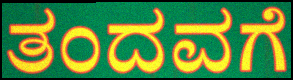
ತಂದವಗೆ